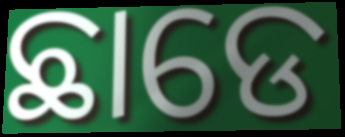
ଛାଡେ